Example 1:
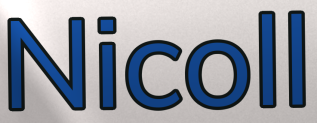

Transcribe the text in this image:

Nicoll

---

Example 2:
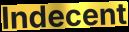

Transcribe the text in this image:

Indecent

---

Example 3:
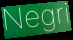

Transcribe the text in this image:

Negri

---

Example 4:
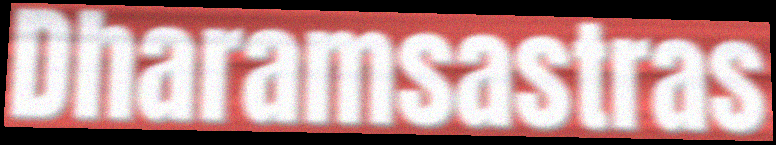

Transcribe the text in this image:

Dharamsastras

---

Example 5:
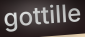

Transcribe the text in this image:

gottille